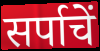
सर्पाचें